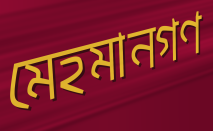
মেহমানগণ